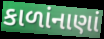
કાળાંનાણાં